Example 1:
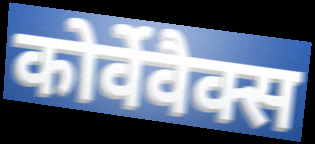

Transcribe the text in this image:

कोर्वेवैक्स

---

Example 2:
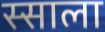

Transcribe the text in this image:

स्साला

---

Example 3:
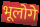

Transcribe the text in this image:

भूलोगे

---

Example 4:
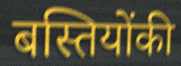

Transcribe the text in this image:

बस्तियोंकी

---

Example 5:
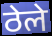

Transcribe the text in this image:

ठेले